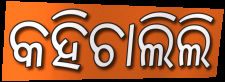
କହିଚାଲିଲି